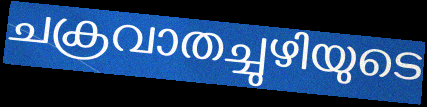
ചക്രവാതച്ചുഴിയുടെ